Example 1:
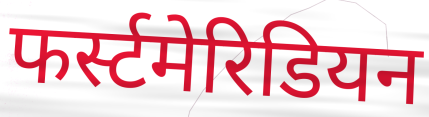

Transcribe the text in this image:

फर्स्टमेरिडियन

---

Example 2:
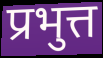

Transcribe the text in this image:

प्रभुत्त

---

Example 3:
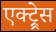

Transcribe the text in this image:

एक्ट्र्रेस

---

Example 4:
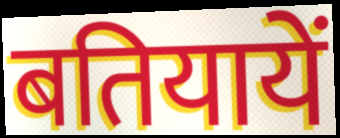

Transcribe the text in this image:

बतियायें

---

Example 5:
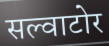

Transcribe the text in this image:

सल्वाटोर